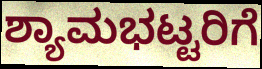
ಶ್ಯಾಮಭಟ್ಟರಿಗೆ